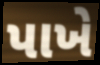
પાખે